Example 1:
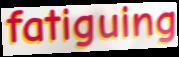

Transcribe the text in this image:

fatiguing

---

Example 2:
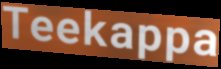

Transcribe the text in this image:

Teekappa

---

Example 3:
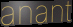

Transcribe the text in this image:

anant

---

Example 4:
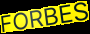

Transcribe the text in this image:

FORBES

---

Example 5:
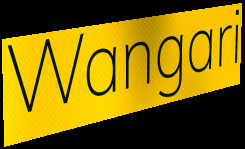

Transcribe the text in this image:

Wangari